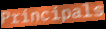
Principals